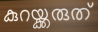
കുറയ്ക്കരുത്